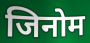
जिनोम